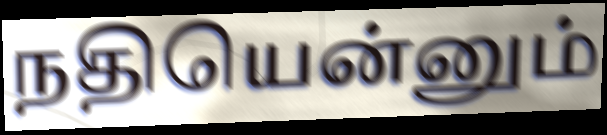
நதியென்னும்